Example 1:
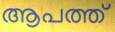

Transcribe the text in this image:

ആപത്ത്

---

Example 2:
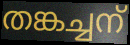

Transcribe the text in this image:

തങ്കച്ചന്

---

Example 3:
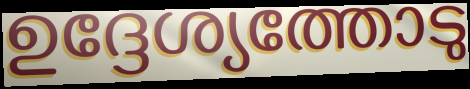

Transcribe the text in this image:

ഉദ്ദേശ്യത്തോടു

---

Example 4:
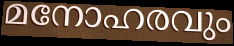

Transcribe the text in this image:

മനോഹരവും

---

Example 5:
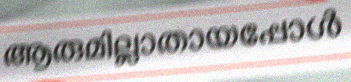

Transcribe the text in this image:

ആരുമില്ലാതായപ്പോൾ